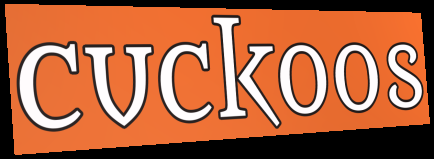
cuckoos